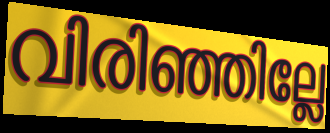
വിരിഞ്ഞില്ലേ